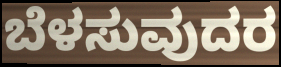
ಬೆಳಸುವುದರ